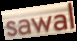
sawal